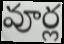
వూర్ల